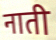
नाती